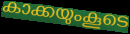
കാക്കയുംകൂടെ